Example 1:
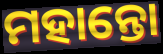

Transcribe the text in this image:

ମହାନ୍ତୋ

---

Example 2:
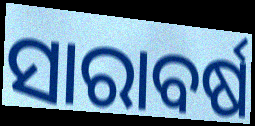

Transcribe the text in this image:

ସାରାବର୍ଷ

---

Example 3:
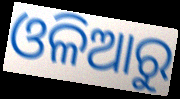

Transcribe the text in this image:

ଓଳିଆରୁ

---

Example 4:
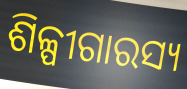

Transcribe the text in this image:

ଶିଳ୍ପୀଗାରସ୍ୟ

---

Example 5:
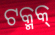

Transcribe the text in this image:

ଟକ୍ମକ୍